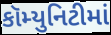
કૉમ્યુનિટીમાં